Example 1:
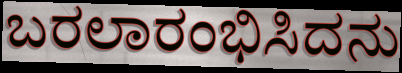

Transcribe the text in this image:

ಬರಲಾರಂಭಿಸಿದನು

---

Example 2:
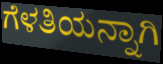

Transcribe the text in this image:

ಗೆಳತಿಯನ್ನಾಗಿ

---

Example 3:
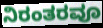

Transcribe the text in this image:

ನಿರಂತರವೂ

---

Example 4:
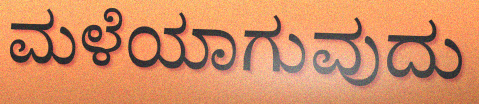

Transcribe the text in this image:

ಮಳೆಯಾಗುವುದು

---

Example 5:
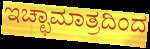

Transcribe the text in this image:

ಇಚ್ಛಾಮಾತ್ರದಿಂದ